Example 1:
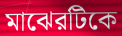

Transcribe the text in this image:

মাঝেরটিকে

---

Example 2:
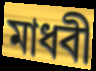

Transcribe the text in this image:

মাধবী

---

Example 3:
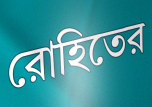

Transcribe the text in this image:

রোহিতের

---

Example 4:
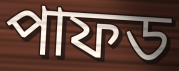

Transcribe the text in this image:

পাফড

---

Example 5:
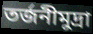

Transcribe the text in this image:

তর্জনীমুদ্রা